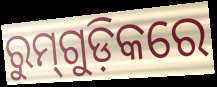
ରୁମ୍‌ଗୁଡ଼ିକରେ